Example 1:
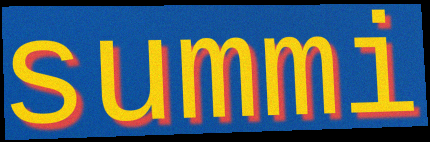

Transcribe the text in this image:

summi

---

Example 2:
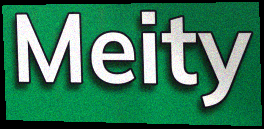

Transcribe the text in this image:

Meity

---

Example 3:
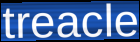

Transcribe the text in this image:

treacle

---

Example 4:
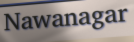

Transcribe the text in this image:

Nawanagar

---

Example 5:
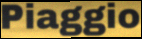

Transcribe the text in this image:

Piaggio